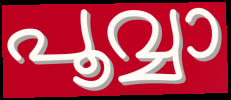
പൂവ്വാ